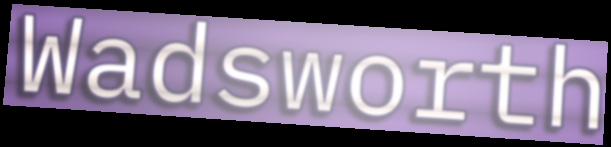
Wadsworth